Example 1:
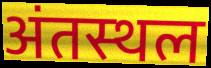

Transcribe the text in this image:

अंतस्थल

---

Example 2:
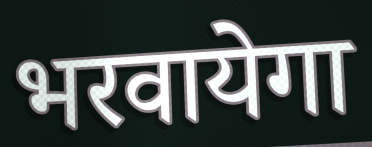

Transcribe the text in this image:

भरवायेगा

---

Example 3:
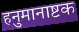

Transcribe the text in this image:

हनुमानाष्टक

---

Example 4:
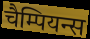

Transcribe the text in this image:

चैम्पियन्स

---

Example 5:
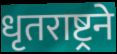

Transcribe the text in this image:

धृतराष्ट्रने